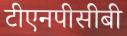
टीएनपीसीबी